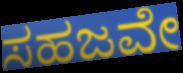
ಸಹಜವೇ